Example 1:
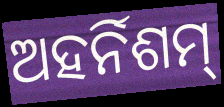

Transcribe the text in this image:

ଅହର୍ନିଶମ୍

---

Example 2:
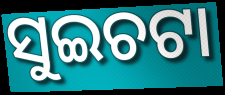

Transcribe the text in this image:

ସୁଇଚଟା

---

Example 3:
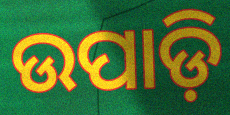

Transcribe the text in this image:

ଉପାଡ଼ି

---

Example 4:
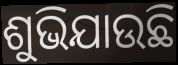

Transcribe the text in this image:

ଶୁଭିଯାଉଛି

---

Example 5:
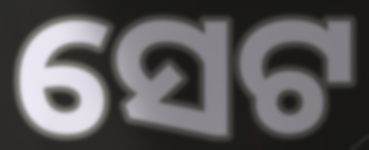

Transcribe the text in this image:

ସେଟ